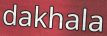
dakhala